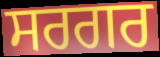
ਸਰਗਰ